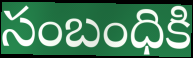
సంబంధికి